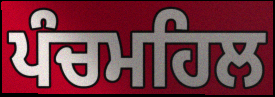
ਪੰਚਮਹਿਲ